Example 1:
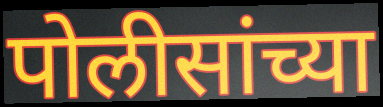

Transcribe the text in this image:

पोलीसांच्या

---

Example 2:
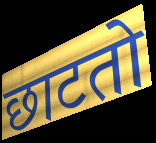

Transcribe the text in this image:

छाटतो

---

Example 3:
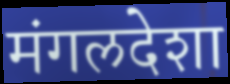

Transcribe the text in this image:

मंगलदेशा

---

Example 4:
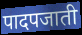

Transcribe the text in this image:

पादपजाती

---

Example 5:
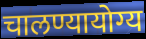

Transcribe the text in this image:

चालण्यायोग्य